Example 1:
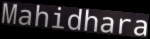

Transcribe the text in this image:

Mahidhara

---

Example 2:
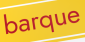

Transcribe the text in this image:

barque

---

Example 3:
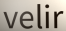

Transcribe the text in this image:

velir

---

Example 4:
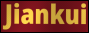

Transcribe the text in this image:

Jiankui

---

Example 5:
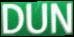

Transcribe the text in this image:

DUN